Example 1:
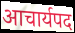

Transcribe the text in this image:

आचार्यपद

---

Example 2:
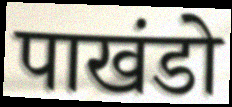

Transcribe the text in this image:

पाखंडो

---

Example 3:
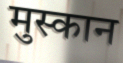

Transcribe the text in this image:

मुस्‍कान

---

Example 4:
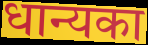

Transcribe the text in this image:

धान्यका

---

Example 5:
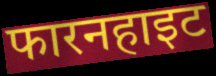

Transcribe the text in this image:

फारनहाइट